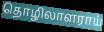
தொழிலாளராய்